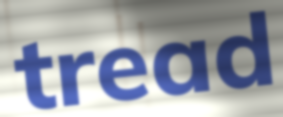
tread